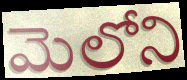
మెలోని